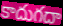
కాదుగదా